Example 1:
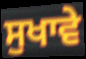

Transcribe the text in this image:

ਸੁਖਾਵੇ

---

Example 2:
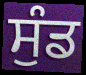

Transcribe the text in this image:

ਸੁੰਡ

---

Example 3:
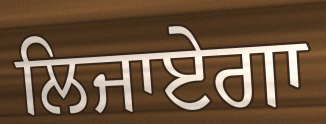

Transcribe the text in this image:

ਲਿਜਾਏਗਾ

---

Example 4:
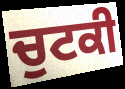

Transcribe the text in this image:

ਚੁਟਕੀ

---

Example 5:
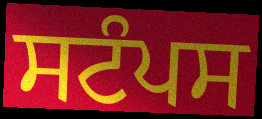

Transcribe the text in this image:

ਸਟੰਪਸ